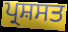
ਪ੍ਰਸ਼ਸਤ